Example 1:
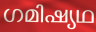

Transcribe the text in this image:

ഗമിഷ്യഥ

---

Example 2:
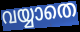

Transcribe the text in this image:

വയ്യാതെ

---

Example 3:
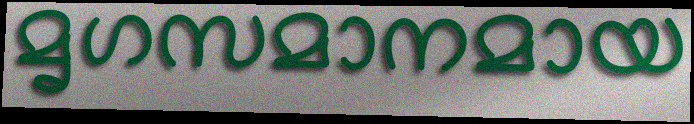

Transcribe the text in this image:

മൃഗസമാനമായ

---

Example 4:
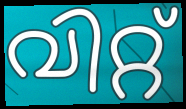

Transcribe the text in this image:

വിറ്റ്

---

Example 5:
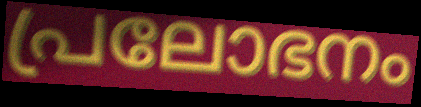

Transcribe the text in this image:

പ്രലോഭനം